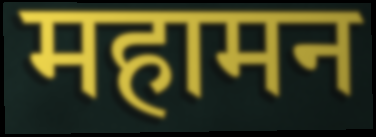
महामन